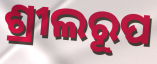
ଶ୍ରୀଲରୂପ